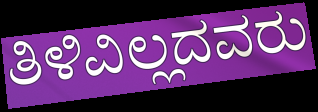
ತಿಳಿವಿಲ್ಲದವರು